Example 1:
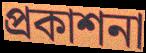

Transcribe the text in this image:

প্ৰকাশনা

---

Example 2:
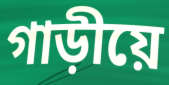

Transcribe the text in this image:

গাড়ীয়ে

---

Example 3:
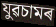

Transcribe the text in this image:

যুৱচামৰ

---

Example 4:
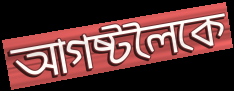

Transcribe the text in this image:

আগষ্টলৈকে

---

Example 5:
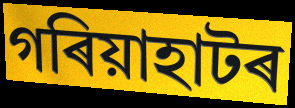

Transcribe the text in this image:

গৰিয়াহাটৰ